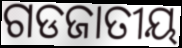
ଗଡଜାତୀୟ